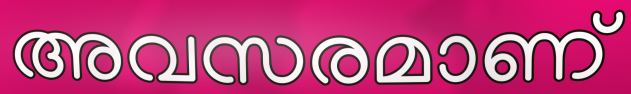
അവസരമാണ്